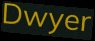
Dwyer